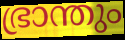
ഭ്രാന്തും